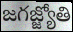
జగజ్జ్యోతి